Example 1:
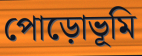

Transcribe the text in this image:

পোড়োভূমি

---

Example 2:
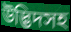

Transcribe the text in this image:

উদ্ভিদসহ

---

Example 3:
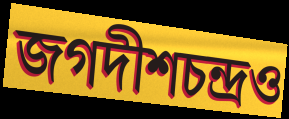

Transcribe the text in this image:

জগদীশচন্দ্রও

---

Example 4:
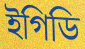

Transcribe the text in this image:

ইগিডি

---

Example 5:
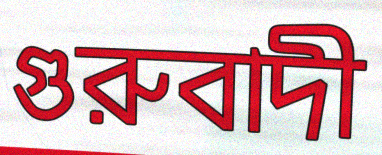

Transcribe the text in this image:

গুরুবাদী